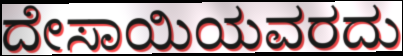
ದೇಸಾಯಿಯವರದು